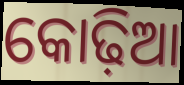
କୋଢ଼ିଆ